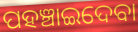
ପହଞ୍ଚାଇଦେବା